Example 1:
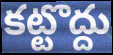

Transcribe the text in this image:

కట్టొద్దు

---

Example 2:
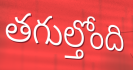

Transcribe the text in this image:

తగుల్తోంది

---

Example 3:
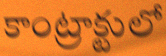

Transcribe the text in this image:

కాంట్రాక్టులో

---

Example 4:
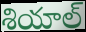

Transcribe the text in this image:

శియాల్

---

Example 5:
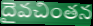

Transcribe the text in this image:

దైవచింతన